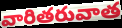
వారితరువాత